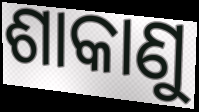
ଶାକାଣୁ